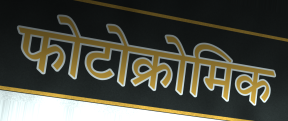
फोटोक्रोमिक